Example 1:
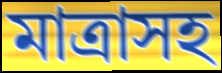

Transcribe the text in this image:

মাত্রাসহ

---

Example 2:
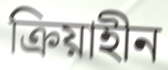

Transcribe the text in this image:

ক্রিয়াহীন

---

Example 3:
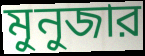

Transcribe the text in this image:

মুনুজার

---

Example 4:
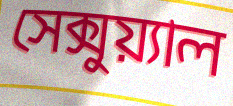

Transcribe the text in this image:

সেক্সুয়্যাল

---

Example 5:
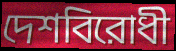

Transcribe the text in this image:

দেশবিরোধী